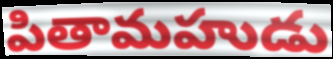
పితామహుడు